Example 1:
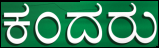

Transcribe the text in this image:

ಕಂದರು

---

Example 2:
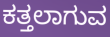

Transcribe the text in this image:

ಕತ್ತಲಾಗುವ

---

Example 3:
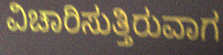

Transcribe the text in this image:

ವಿಚಾರಿಸುತ್ತಿರುವಾಗ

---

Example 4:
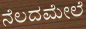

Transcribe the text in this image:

ನೆಲದಮೇಲೆ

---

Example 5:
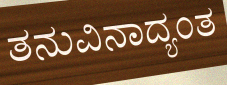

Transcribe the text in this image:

ತನುವಿನಾದ್ಯಂತ